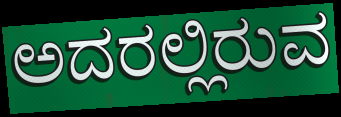
ಅದರಲ್ಲಿರುವ